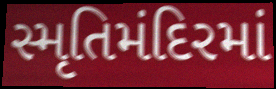
સ્મૃતિમંદિરમાં